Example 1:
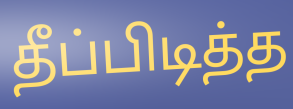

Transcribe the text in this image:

தீப்பிடித்த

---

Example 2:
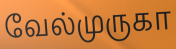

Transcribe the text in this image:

வேல்முருகா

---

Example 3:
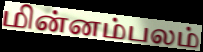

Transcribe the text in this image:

மின்னம்பலம்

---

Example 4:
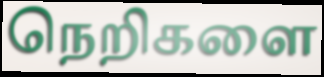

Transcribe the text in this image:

நெறிகளை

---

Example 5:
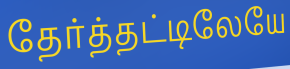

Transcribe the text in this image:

தேர்த்தட்டிலேயே